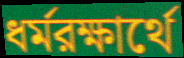
ধর্মরক্ষার্থে